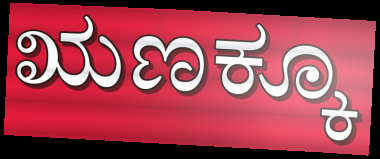
ಋಣಕ್ಕೂ